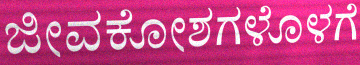
ಜೀವಕೋಶಗಳೊಳಗೆ